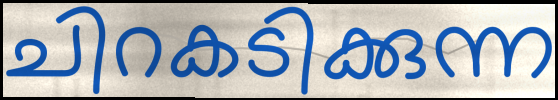
ചിറകടിക്കുന്ന